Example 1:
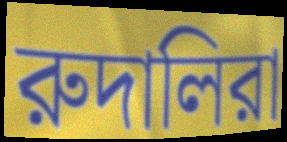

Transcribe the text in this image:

রুদালিরা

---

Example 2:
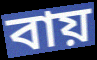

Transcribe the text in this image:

বায়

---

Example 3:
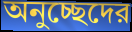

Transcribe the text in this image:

অনুচ্ছেদের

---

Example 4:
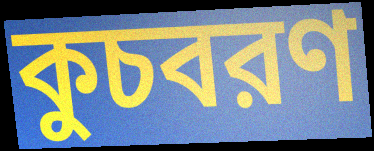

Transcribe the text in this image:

কুচবরণ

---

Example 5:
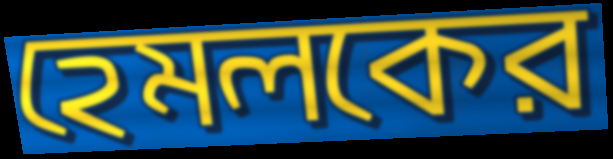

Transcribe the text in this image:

হেমলকের